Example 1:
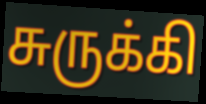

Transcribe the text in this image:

சுருக்கி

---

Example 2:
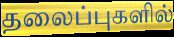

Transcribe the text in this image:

தலைப்புகளில்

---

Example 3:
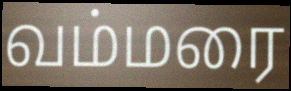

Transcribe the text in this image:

வம்மரை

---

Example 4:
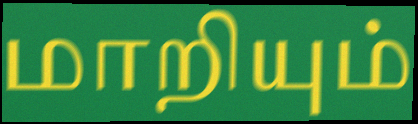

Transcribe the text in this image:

மாறியும்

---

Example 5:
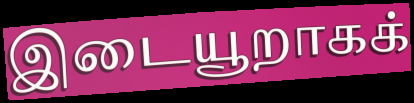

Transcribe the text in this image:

இடையூறாகக்